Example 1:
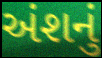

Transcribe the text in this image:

અંશનું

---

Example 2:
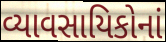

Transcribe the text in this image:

વ્યાવસાયિકોનાં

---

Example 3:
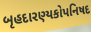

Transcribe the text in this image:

બૃહદારણ્યકોપનિષદ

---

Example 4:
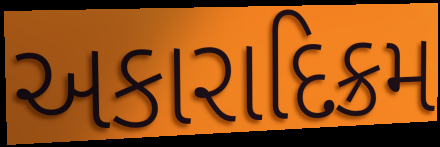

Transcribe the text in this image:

અકારાદિક્રમ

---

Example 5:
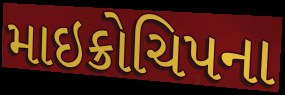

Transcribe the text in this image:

માઇક્રોચિપના